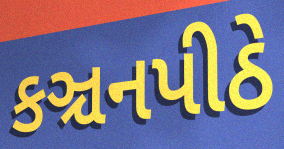
કઞ્ચનપીઠે